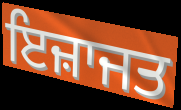
ਇਜ਼ਾਜਤ